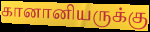
கானானியருக்கு